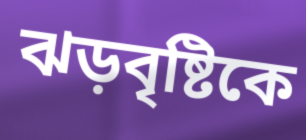
ঝড়বৃষ্টিকে